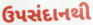
ઉપસંદાનથી